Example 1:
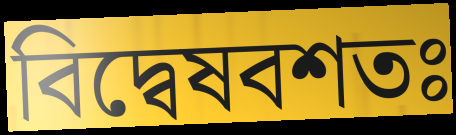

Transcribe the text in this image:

বিদ্বেষবশতঃ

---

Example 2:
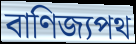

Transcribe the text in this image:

বাণিজ্যপথ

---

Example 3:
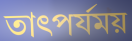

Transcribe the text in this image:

তাৎপর্যময়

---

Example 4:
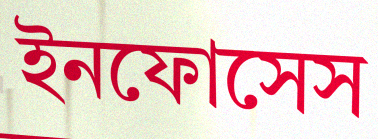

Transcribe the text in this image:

ইনফোসেস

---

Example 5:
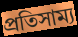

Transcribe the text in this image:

প্রতিসাম্য